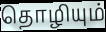
தொழியும்